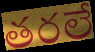
తరలే